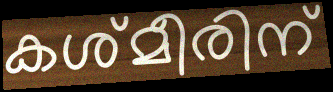
കശ്മീരിന്